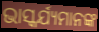
ଭାସ୍କର୍ଯ୍ୟମାନଙ୍କ